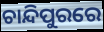
ଚାନ୍ଦିପୁରରେ